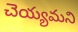
చెయ్యమని